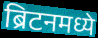
ब्रिटनमध्ये